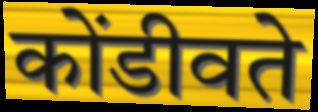
कोंडीवते